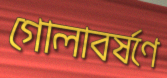
গোলাবর্ষণে